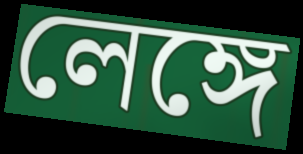
লেঙ্গে